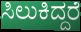
ಸಿಲುಕಿದ್ದರೆ